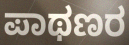
ಪಾಥಣರ